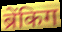
ब्रेंकिग